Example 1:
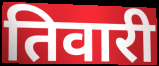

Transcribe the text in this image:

तिवारी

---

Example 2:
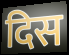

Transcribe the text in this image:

दिस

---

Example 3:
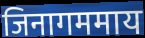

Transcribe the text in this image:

जिनागममाय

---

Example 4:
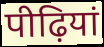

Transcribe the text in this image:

पीढ़ियां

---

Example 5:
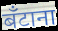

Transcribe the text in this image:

बँटाना